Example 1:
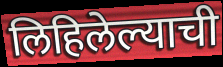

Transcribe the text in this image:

लिहिलेल्याची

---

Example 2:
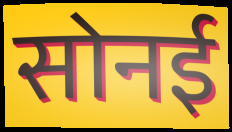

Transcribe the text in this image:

सोनई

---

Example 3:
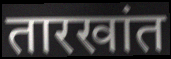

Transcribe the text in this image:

तारखांत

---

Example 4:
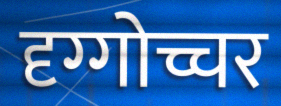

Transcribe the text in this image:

दृग्गोच्चर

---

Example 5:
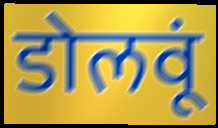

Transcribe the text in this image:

डोलवूं